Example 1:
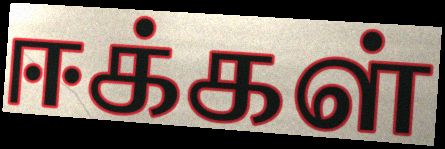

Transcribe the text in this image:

ஈக்கள்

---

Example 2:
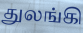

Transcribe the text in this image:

துலங்கி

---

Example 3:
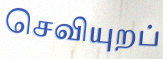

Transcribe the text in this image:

செவியுறப்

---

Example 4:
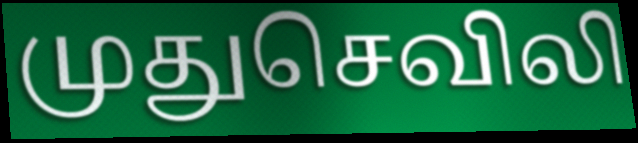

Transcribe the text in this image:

முதுசெவிலி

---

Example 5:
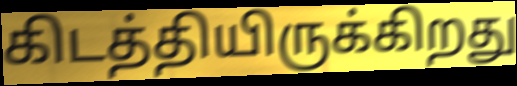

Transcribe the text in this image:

கிடத்தியிருக்கிறது